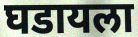
घडायला